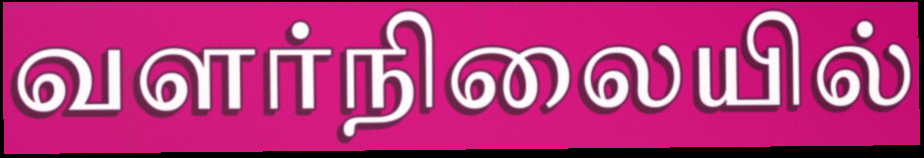
வளர்நிலையில்